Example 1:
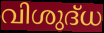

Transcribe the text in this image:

വിശുദ്‌ധ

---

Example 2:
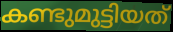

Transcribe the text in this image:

കണ്ടുമുട്ടിയത്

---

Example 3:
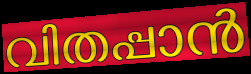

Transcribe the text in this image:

വിതപ്പാൻ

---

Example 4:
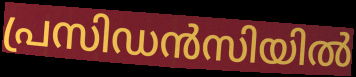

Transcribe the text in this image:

പ്രസിഡൻസിയിൽ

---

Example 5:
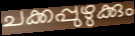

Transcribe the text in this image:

ചക്കപ്പുഴുക്കും